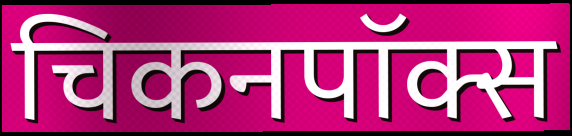
चिकनपॉक्स